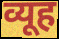
व्यूह